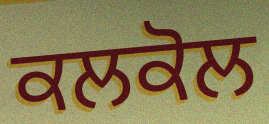
ਕਲਕੋਲ